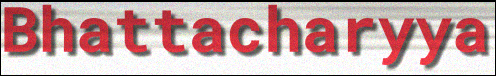
Bhattacharyya